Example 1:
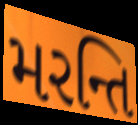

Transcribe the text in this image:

મરન્તિ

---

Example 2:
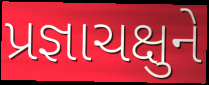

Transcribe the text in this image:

પ્રજ્ઞાચક્ષુને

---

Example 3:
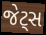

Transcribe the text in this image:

જેટ્સ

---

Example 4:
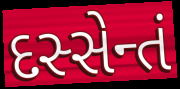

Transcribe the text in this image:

દસ્સેન્તં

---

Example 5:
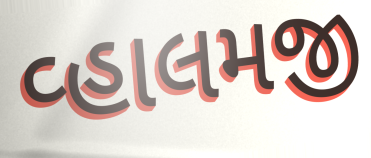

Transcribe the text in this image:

વ્હાલમજી